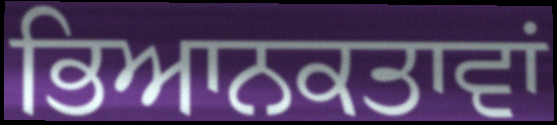
ਭਿਆਨਕਤਾਵਾਂ